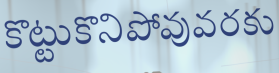
కొట్టుకొనిపోవువరకు